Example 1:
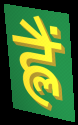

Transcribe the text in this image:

ह्लैं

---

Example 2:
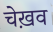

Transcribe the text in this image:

चेख़व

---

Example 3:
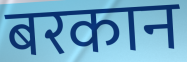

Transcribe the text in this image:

बरकान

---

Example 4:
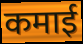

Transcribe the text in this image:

कमाई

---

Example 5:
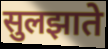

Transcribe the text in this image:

सुलझाते